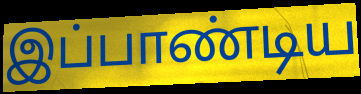
இப்பாண்டிய